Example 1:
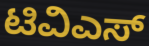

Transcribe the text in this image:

ಟಿವಿಎಸ್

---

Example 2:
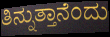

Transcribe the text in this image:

ತಿನ್ನುತ್ತಾನೆಂದು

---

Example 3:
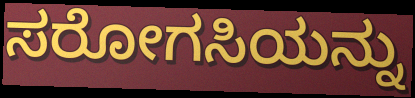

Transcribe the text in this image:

ಸರೋಗಸಿಯನ್ನು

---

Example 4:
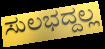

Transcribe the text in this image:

ಸುಲಭದ್ದಲ್ಲ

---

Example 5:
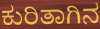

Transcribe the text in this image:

ಕುರಿತಾಗಿನ